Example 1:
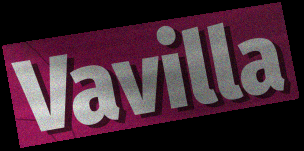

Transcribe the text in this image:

Vavilla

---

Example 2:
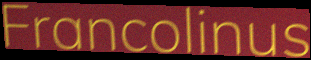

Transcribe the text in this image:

Francolinus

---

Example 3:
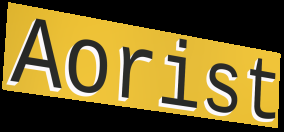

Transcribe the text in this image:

Aorist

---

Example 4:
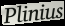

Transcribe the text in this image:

Plinius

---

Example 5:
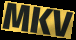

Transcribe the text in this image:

MKV